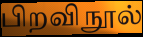
பிறவிநூல்